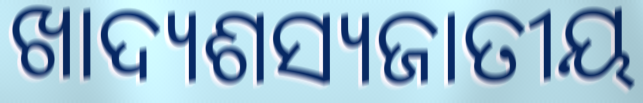
ଖାଦ୍ୟଶସ୍ୟଜାତୀୟ